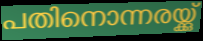
പതിനൊന്നരയ്ക്കു്